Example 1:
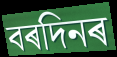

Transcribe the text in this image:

বৰদিনৰ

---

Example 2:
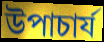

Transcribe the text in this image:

উপাচাৰ্য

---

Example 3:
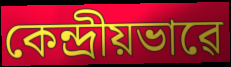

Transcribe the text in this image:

কেন্দ্ৰীয়ভাৱে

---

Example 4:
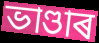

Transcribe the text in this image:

ভাণ্ডাৰ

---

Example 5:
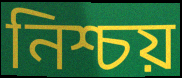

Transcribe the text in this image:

নিশ্চয়